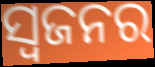
ସ୍ୱଜନର